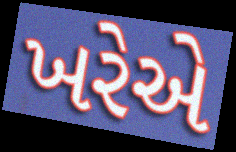
ખરેએ